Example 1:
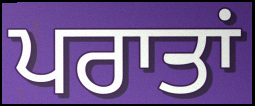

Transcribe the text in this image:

ਪਰਾਤਾਂ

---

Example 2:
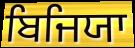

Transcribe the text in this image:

ਬਿਜਿਯਾ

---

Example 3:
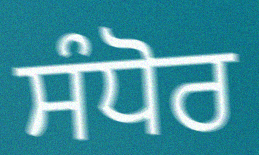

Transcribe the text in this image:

ਸੰਧੋਰ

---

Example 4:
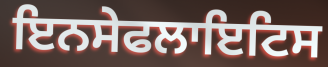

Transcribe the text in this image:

ਇਨਸੇਫਲਾਇਟਿਸ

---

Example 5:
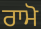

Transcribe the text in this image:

ਰਾਮੋ